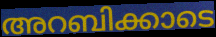
അറബിക്കാടെ